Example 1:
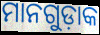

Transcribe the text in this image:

ମାନଗୁଡ଼ାକ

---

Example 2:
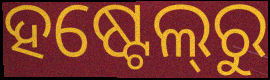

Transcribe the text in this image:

ହଷ୍ଟେଲ୍‍ରୁ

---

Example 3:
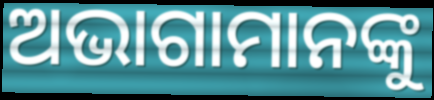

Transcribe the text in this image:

ଅଭାଗାମାନଙ୍କୁ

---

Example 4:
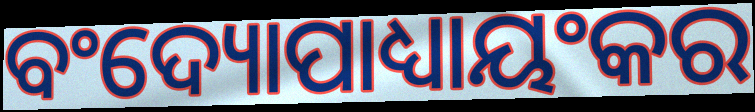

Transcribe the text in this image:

ବଂଦ୍ୟୋପାଧ୍ୟାୟଂକର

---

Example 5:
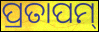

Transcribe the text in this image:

ପ୍ରତାପମ୍